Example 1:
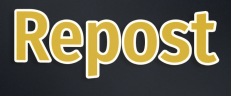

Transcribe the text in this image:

Repost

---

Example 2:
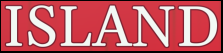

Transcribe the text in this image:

ISLAND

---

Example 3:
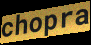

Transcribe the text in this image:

chopra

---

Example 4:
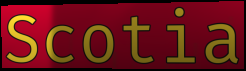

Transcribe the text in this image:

Scotia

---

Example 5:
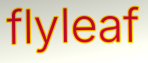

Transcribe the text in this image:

flyleaf